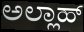
ಅಲ್ಲಾಹ್